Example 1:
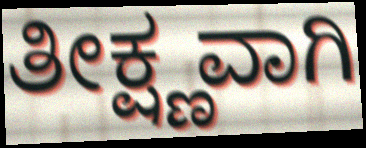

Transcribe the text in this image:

ತೀಕ್ಷ್ಣವಾಗಿ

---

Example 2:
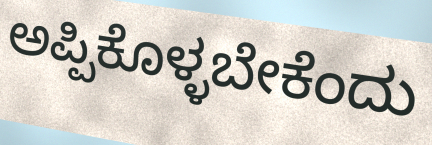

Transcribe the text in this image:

ಅಪ್ಪಿಕೊಳ್ಳಬೇಕೆಂದು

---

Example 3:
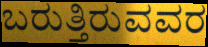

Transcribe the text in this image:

ಬರುತ್ತಿರುವವರ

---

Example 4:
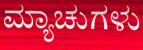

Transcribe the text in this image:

ಮ್ಯಾಚುಗಳು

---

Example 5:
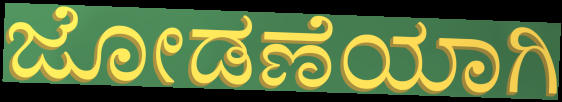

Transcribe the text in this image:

ಜೋಡಣೆಯಾಗಿ